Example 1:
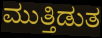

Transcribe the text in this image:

ಮುತ್ತಿಡುತ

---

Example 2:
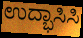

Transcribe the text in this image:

ಉದ್ಭಾಸಿಸಿ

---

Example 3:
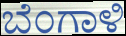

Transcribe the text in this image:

ಬೆಂಗಾಳಿ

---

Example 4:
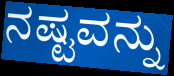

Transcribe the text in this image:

ನಷ್ಟವನ್ನು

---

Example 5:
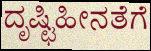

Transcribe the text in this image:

ದೃಷ್ಟಿಹೀನತೆಗೆ